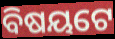
ବିଷୟଟେ